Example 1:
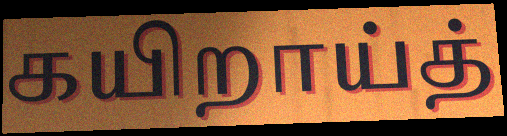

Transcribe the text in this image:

கயிறாய்த்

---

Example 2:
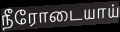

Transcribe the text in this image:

நீரோடையாய்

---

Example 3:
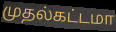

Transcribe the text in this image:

முதல்கட்டமா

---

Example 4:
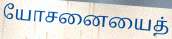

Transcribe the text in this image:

யோசனையைத்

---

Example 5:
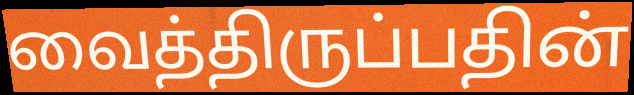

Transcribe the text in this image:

வைத்திருப்பதின்